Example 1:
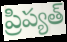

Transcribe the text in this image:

ప్రిప్యత్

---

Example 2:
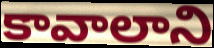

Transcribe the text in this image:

కావాలాని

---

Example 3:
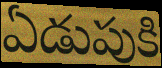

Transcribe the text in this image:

ఏడుపుకి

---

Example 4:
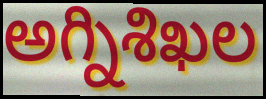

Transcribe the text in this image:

అగ్నిశిఖల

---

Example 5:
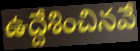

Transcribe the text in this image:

ఉద్దేశించినవే